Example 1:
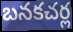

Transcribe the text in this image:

బనకచర్ల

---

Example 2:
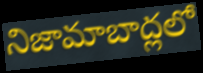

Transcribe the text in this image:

నిజామాబాద్లలో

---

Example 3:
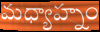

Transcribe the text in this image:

మధ్యాహ్నం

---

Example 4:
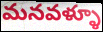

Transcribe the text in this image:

మనవళ్ళూ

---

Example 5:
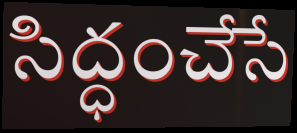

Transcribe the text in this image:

సిద్ధంచేసే